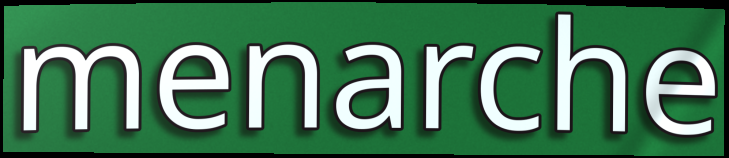
menarche